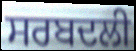
ਸਰਬਦਲੀ